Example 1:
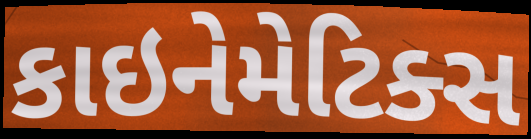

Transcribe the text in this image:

કાઇનેમેટિક્સ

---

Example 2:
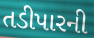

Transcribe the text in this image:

તડીપારની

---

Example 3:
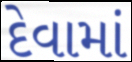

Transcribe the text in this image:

દેવામાં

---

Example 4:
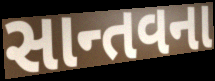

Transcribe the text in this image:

સાન્તવના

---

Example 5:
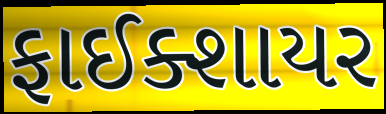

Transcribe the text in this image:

ફાઈક્શાયર